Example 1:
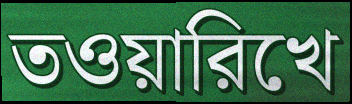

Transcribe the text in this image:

তওয়ারিখে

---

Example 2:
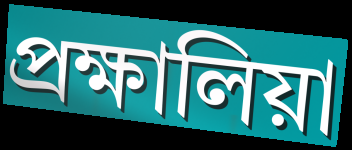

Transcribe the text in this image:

প্রক্ষালিয়া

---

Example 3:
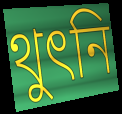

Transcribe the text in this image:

থুৎনি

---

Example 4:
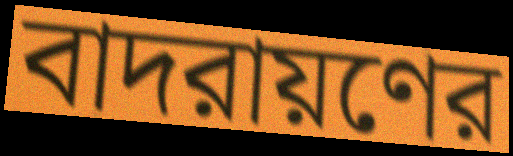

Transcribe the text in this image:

বাদরায়ণের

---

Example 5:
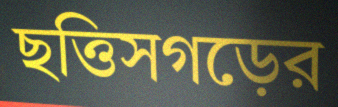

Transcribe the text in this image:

ছত্তিসগড়ের